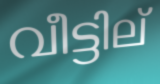
വീട്ടില്